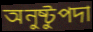
অনুষ্টুপদা